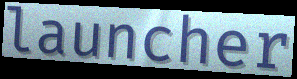
launcher